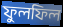
ফুলফিল